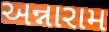
અન્નારામ